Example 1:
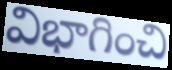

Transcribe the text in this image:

విభాగించి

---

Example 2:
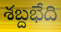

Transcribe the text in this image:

శబ్దభేది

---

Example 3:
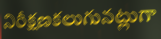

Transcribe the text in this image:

నిరీక్షణకలుగునట్లుగా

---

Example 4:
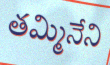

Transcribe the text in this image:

తమ్మినేని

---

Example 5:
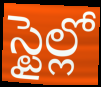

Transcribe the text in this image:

స్టైల్లో